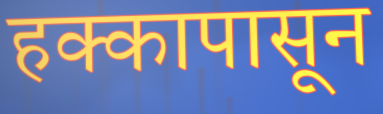
हक्कापासून